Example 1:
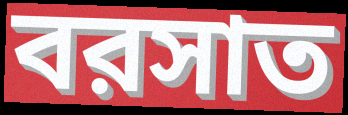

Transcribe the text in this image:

বরসাত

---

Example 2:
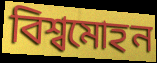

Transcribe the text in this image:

বিশ্বমোহন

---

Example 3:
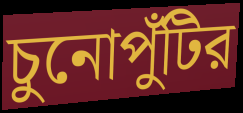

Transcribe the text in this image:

চুনোপুঁটির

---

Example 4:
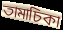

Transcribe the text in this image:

তামাচিকা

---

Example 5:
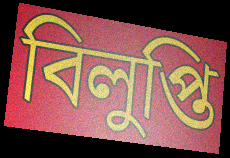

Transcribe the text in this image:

বিলুপ্তি